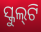
ସ୍କୁଲ୍‌ଟି